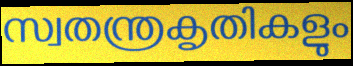
സ്വതന്ത്രകൃതികളും